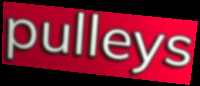
pulleys